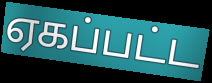
ஏகப்பட்ட